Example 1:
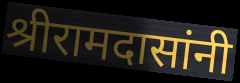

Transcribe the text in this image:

श्रीरामदासांनी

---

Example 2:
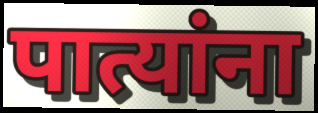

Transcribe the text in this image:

पात्यांना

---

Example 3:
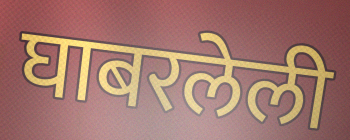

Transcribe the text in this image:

घाबरलेली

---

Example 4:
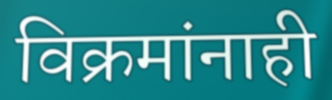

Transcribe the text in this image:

विक्रमांनाही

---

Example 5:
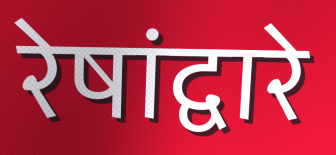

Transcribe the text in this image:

रेषांद्वारे